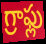
గ్రాఫ్లు